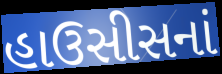
હાઉસીસનાં